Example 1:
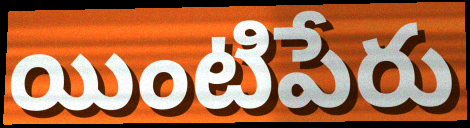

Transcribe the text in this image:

యింటిపేరు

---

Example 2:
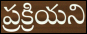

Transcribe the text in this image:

ప్రక్రియని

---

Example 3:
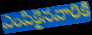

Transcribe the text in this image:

ఎంపికైనవారికి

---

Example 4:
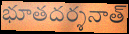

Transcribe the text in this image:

భూతదర్శనాత్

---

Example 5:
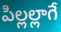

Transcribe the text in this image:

పిల్లల్లాగే